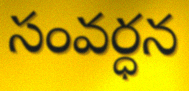
సంవర్ధన